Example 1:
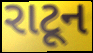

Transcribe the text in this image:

રાટૂન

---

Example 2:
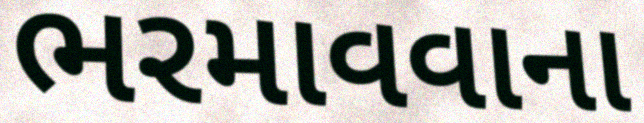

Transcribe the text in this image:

ભરમાવવાના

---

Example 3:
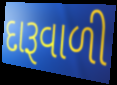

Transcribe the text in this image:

દારૂવાળી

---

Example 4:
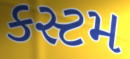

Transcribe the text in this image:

કસ્ટમ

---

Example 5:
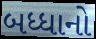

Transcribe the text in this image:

બધ્ધાનો